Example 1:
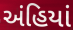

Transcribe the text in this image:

અંહિયાં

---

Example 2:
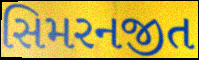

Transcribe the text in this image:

સિમરનજીત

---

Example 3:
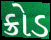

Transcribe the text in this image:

ક્રોડ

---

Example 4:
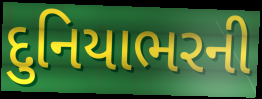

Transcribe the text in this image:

દુનિયાભરની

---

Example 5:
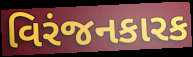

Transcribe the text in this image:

વિરંજનકારક